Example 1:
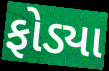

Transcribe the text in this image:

ફોડ્યા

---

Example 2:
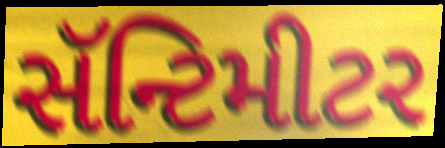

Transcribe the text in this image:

સૅન્ટિમીટર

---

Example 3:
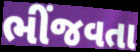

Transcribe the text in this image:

ભીંજવતા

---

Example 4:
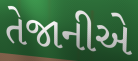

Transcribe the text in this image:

તેજાનીએ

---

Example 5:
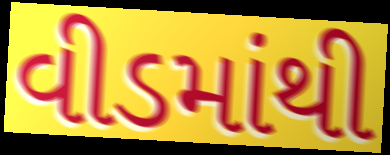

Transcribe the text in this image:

વીડમાંથી